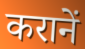
करानें